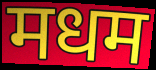
मधम